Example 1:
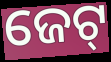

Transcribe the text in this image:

ଜେଟ୍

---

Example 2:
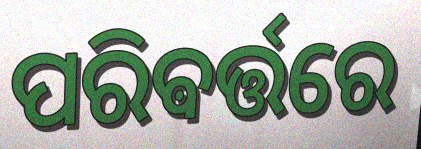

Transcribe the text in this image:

ପରିଵର୍ତ୍ତରେ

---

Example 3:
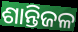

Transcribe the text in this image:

ଶାନ୍ତିଜଳ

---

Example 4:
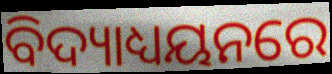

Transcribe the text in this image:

ବିଦ୍ୟାଧ୍ୟୟନରେ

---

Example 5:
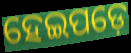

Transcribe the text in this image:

ହେଇପଡ଼େ